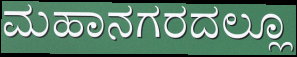
ಮಹಾನಗರದಲ್ಲೂ